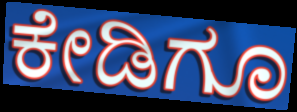
ಕೇಡಿಗೂ